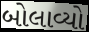
બોલાવ્યો